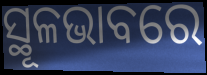
ସ୍ଥୂଳଭାବରେ